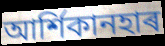
আৰ্শিকানহাৰ